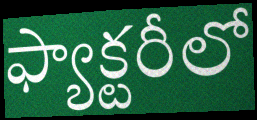
ఫ్యాక్టరీలో